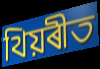
থিয়ৰীত